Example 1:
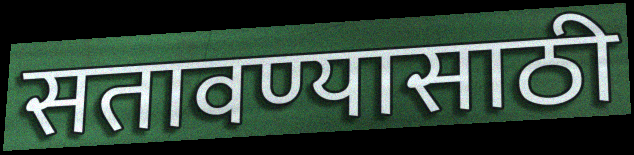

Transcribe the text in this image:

सतावण्यासाठी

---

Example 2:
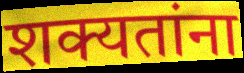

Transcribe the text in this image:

शक्यतांना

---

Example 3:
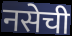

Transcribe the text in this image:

नसेची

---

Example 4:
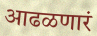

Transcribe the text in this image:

आढळणारं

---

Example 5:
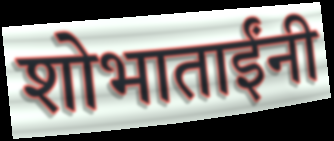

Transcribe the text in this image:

शोभाताईंनी